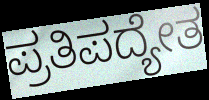
ಪ್ರತಿಪದ್ಯೇತ